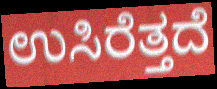
ಉಸಿರೆತ್ತದೆ